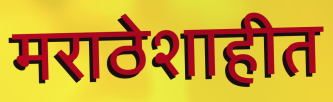
मराठेशाहीत